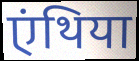
एंथिया